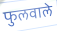
फुलवाले